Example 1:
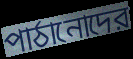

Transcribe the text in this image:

পাঠানোদের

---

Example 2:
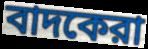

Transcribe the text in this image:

বাদকেরা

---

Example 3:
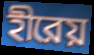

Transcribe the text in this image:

হীরেয়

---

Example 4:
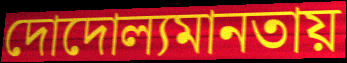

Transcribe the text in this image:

দোদোল্যমানতায়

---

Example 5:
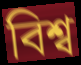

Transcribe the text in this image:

বিশ্ব